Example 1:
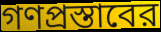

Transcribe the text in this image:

গণপ্রস্তাবের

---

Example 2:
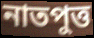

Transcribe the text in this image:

নাতপুত্ত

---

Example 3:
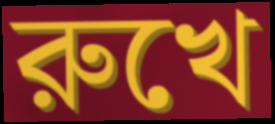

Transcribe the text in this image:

রুখে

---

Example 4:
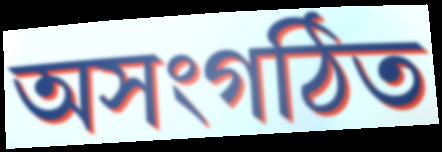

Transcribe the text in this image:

অসংগঠিত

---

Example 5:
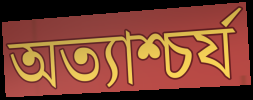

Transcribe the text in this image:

অত্যাশ্চর্য